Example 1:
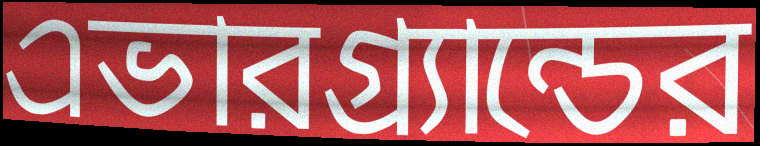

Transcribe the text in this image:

এভারগ্র্যান্ডের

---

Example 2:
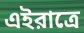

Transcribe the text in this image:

এইরাত্রে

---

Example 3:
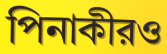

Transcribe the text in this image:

পিনাকীরও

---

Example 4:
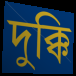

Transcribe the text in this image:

দুক্কি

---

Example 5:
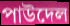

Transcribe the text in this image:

পাউদেল